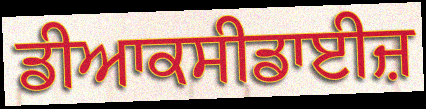
ਡੀਆਕਸੀਡਾਈਜ਼